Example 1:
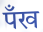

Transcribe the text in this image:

पँख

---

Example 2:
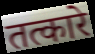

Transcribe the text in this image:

तत्कारे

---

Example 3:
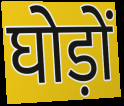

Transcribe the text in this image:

घोड़ों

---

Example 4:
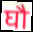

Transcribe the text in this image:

घौ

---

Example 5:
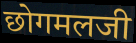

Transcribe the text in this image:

छोगमलजी